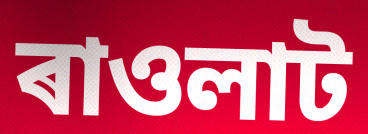
ৰাওলাট